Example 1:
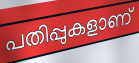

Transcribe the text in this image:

പതിപ്പുകളാണ്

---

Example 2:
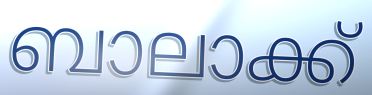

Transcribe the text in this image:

ബാലാക്ക്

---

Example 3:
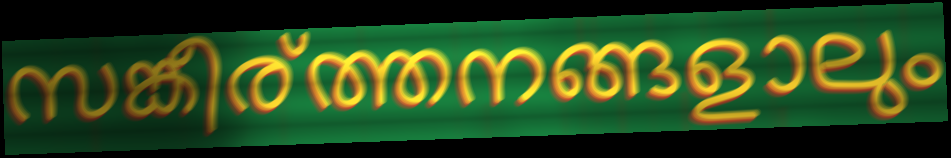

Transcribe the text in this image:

സങ്കീര്ത്തനങ്ങളാലും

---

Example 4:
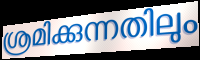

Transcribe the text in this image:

ശ്രമിക്കുന്നതിലും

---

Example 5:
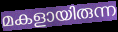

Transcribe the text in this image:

മകളായിരുന്ന